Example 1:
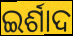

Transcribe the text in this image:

ଇର୍ଶାଦ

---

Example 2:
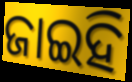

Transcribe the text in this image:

ଜାଇହି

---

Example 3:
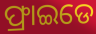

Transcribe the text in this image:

ଫ୍ରାଇଡେ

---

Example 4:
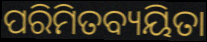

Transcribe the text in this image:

ପରିମିତବ୍ୟୟିତା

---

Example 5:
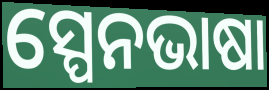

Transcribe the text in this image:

ସ୍ପେନଭାଷା